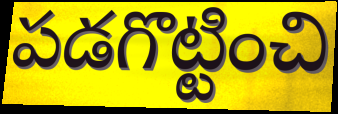
పడగొట్టించి